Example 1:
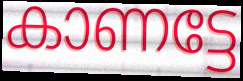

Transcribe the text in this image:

കാണട്ടേ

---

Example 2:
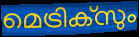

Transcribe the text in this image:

മെട്രിക്സും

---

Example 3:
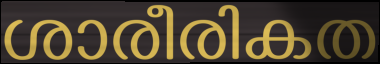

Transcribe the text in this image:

ശാരീരികത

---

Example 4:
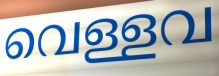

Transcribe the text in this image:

വെള്ളവ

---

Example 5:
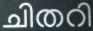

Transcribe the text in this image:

ചിതറി